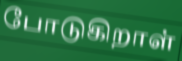
போடுகிறாள்